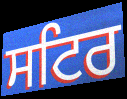
ਸਟਿਰ